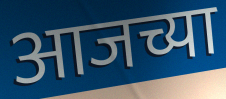
आजच्या